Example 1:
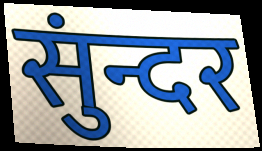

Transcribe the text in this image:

सुंन्दर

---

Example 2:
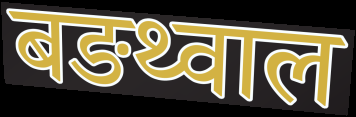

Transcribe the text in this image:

बङथ्वाल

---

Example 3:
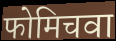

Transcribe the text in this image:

फोमिचवा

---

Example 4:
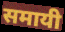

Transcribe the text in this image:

समायी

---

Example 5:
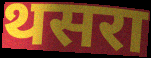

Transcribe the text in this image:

थसरा